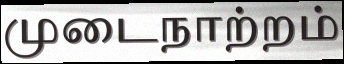
முடைநாற்றம்